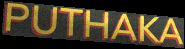
PUTHAKA